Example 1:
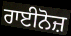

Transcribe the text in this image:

ਰਾਈਨੋਜ਼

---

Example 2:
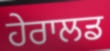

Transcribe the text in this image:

ਹੇਰਾਲਡ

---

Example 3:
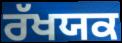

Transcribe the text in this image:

ਰੱਖਯਕ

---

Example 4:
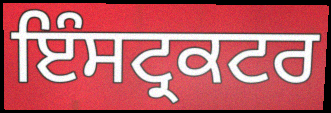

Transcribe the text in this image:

ਇੰਸਟ੍ਰਕਟਰ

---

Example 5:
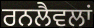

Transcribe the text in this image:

ਰਨਲੈਵਲਾਂ